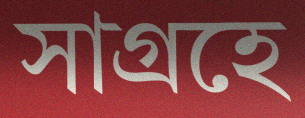
সাগ্রহে